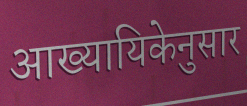
आख्यायिकेनुसार